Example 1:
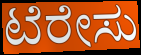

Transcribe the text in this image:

ಟೆರೇಸು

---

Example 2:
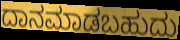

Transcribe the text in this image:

ದಾನಮಾಡಬಹುದು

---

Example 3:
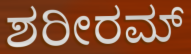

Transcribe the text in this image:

ಶರೀರಮ್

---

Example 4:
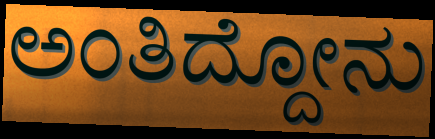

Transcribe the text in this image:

ಅಂತಿದ್ದೋನು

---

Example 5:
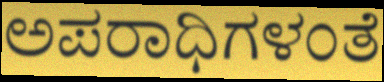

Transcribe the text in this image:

ಅಪರಾಧಿಗಳಂತೆ